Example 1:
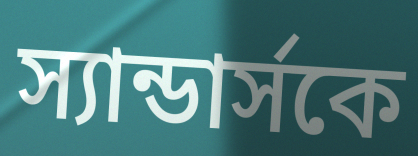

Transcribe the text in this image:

স্যান্ডার্সকে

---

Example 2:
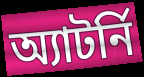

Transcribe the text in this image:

অ্যাটর্নি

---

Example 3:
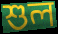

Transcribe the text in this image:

শুল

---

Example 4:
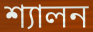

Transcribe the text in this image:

শ্যালন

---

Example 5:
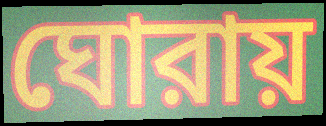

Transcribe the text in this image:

ঘোরায়